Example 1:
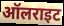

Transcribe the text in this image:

ऑलराइट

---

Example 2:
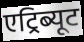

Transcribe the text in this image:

एट्रिब्यूट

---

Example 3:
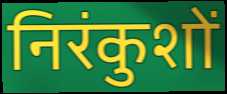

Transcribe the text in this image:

निरंकुशों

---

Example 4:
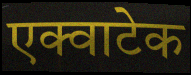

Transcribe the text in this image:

एक्वाटेक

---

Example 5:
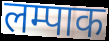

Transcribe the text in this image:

लम्पाक